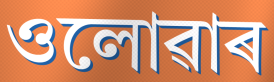
ওলোৱাৰ